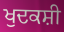
ਖੁਦਕਸ਼ੀ